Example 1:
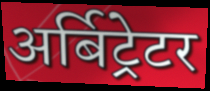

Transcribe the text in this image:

अर्बिट्रेटर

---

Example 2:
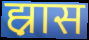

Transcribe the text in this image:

ह्नास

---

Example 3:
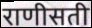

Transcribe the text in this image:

राणीसती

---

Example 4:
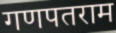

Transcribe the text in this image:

गणपतराम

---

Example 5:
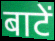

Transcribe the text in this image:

बाटें